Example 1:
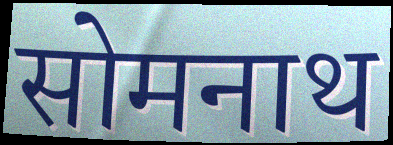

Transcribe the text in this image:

सोमनाथ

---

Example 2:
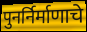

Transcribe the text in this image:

पुनर्निर्माणाचे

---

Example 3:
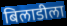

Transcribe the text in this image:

बिलाडीला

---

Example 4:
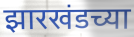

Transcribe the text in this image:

झारखंडच्या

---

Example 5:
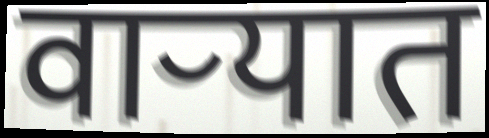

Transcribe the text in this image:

वाऱ्यात